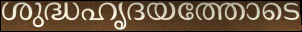
ശുദ്ധഹൃദയത്തോടെ